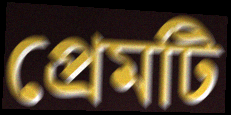
প্রেমটি